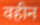
वहीन